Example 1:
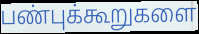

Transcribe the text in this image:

பண்புக்கூறுகளை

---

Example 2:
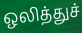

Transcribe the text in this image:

ஒலித்துச்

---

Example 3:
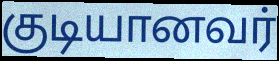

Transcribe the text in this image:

குடியானவர்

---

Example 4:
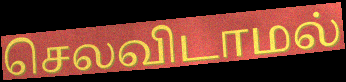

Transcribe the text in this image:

செலவிடாமல்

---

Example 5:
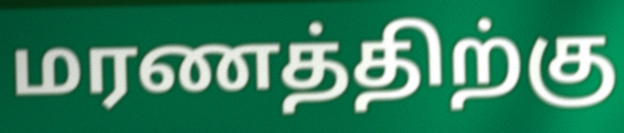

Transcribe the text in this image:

மரணத்திற்கு